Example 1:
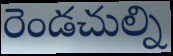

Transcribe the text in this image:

రెండచుల్ని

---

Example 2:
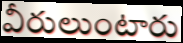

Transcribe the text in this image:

వీరులుంటారు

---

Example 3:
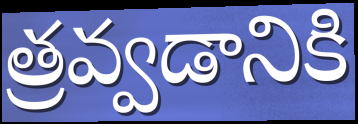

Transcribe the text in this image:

త్రవ్వడానికి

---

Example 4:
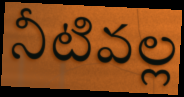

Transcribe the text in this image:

నీటివల్ల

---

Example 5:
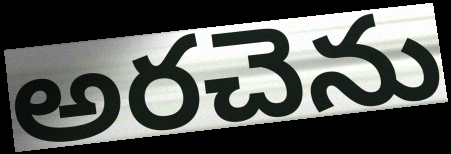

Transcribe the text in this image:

అరచెను